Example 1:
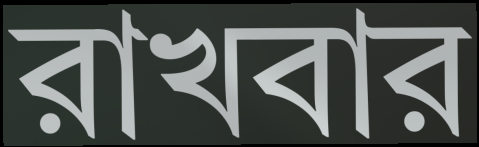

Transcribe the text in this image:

রাখবার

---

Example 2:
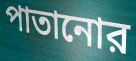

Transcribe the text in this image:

পাতানোর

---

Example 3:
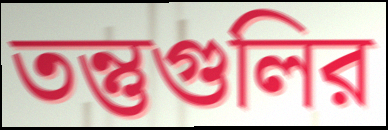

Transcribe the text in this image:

তন্তুগুলির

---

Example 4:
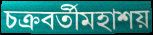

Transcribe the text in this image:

চক্রবর্তীমহাশয়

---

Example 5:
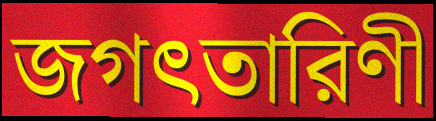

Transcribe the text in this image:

জগৎতারিণী